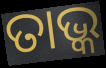
ତାଭ୍କ